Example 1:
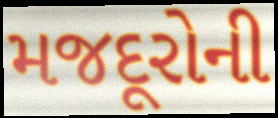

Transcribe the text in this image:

મજદૂરોની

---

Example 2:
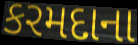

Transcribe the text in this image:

કરમદાના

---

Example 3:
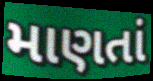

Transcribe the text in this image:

માણતાં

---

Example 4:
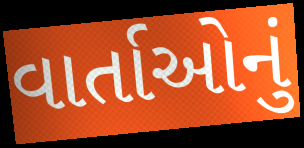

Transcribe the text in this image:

વાર્તાઓનું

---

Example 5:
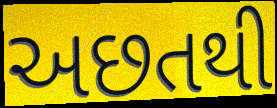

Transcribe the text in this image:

અછતથી